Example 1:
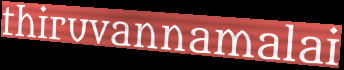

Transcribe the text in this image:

thiruvannamalai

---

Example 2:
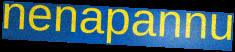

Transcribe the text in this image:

nenapannu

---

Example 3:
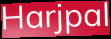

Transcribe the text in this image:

Harjpal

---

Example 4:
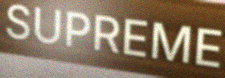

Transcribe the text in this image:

SUPREME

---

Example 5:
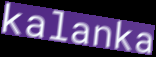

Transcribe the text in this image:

kalanka